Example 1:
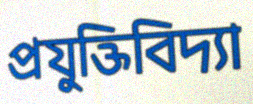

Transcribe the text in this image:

প্ৰযুক্তিবিদ্যা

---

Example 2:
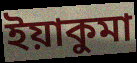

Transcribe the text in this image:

ইয়াকুমা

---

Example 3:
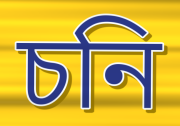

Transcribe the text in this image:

চনি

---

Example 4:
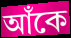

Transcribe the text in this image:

আঁকে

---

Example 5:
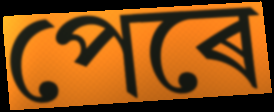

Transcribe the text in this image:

পেৰে